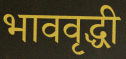
भाववृद्धी